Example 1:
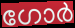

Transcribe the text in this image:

ഗോർ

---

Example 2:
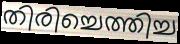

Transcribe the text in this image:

തിരിച്ചെത്തിച്ച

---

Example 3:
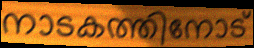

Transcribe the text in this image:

നാടകത്തിനോട്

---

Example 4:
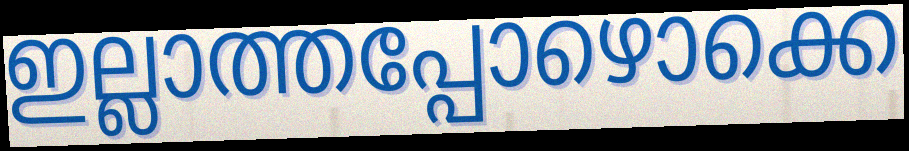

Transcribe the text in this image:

ഇല്ലാത്തപ്പോഴൊക്കെ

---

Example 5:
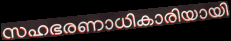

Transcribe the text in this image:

സഹഭരണാധികാരിയായി